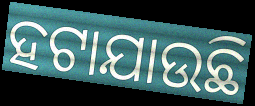
ହଟାଯାଉଛି